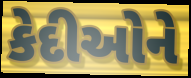
કેદીઓને